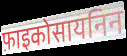
फ़ाइकोसायनिन